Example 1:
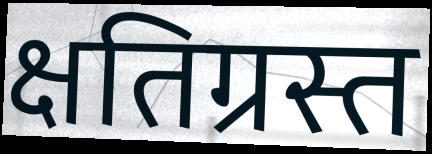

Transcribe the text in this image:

क्षतिग्रस्त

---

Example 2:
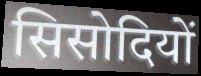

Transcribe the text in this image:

सिसोदियों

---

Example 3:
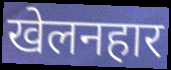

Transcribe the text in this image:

खेलनहार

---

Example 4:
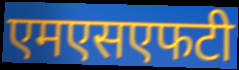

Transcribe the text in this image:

एमएसएफटी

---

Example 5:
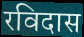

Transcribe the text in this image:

रविदास